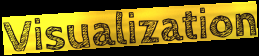
Visualization